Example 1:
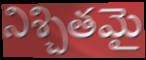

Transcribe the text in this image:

నిశ్చితమై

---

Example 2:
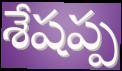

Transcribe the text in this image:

శేషప్ప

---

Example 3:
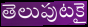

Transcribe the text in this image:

తెలుపుటకై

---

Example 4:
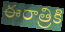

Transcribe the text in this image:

ఈరాత్రికి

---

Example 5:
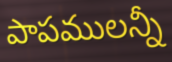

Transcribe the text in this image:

పాపములన్నీ